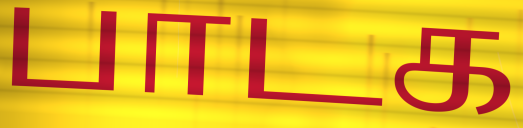
பாடக